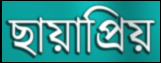
ছায়াপ্রিয়